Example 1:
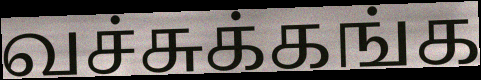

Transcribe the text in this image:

வச்சுக்கங்க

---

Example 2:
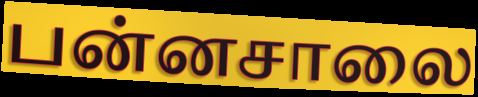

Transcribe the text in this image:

பன்னசாலை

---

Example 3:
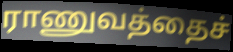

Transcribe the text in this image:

ராணுவத்தைச்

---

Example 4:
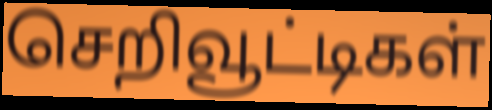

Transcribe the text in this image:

செறிவூட்டிகள்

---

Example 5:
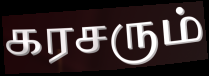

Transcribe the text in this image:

கரசரும்